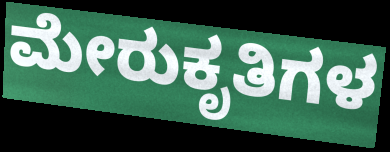
ಮೇರುಕೃತಿಗಳ